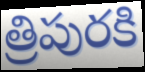
త్రిపురకి